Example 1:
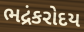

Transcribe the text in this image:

ભદ્રંકરોદય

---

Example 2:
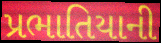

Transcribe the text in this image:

પ્રભાતિયાની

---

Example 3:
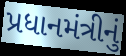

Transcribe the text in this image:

પ્રધાનમંત્રીનું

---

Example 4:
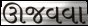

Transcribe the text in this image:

ઊજવવા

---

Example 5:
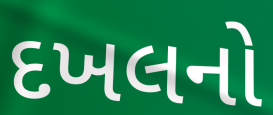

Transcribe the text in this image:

દખલનો